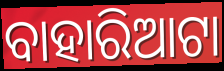
ବାହାରିଆଟା